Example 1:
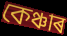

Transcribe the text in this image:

কেঞ্চাৰ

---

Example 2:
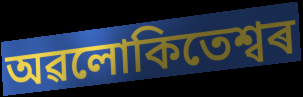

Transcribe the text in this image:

অৱলোকিতেশ্বৰ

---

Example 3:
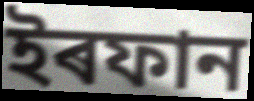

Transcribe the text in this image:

ইৰফান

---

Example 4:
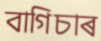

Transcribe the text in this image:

বাগিচাৰ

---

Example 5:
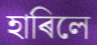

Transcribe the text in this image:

হাৰিলে